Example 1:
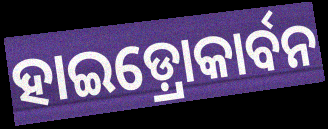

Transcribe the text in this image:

ହାଇଡ଼୍ରୋକାର୍ବନ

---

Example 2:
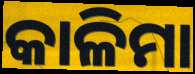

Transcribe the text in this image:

କାଳିମା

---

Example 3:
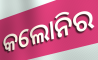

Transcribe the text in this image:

କଲୋନିର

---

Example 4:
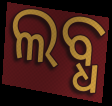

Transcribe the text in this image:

ଲବ୍ଧ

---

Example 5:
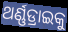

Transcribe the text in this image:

ଥର୍ଣ୍ଣଡ୍ରାଇକୁ